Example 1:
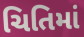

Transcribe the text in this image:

ચિતિમાં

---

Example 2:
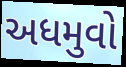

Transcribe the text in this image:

અધમુવો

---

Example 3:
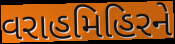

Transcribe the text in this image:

વરાહમિહિરને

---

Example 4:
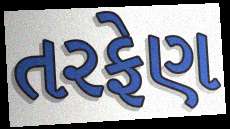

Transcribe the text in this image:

તરફેણ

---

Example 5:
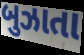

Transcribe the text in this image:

બુઝાતા